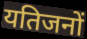
यतिजनों